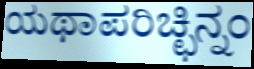
ಯಥಾಪರಿಚ್ಛಿನ್ನಂ